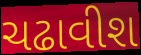
ચઢાવીશ